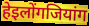
हेइलोंगजियांग